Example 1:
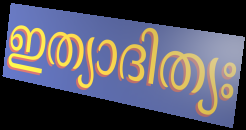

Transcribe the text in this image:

ഇത്യാദിത്യഃ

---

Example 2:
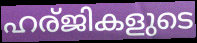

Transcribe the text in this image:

ഹര്ജികളുടെ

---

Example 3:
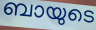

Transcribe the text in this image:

ബായുടെ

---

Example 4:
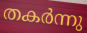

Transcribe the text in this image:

തകർന്നു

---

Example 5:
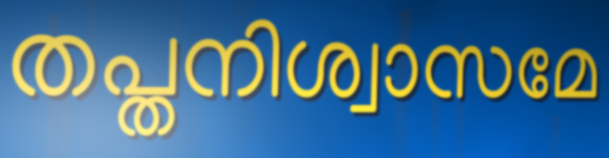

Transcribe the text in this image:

തപ്തനിശ്വാസമേ